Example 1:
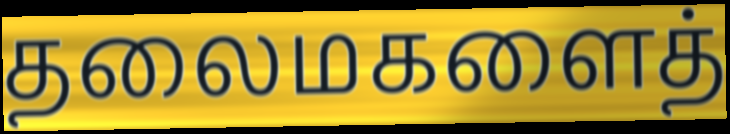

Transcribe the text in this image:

தலைமகளைத்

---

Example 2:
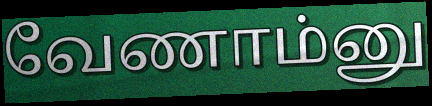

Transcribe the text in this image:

வேணாம்னு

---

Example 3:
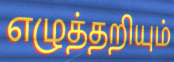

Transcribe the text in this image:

எழுத்தறியும்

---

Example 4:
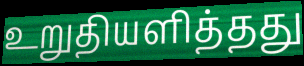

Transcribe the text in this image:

உறுதியளித்தது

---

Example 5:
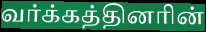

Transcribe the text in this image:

வர்க்கத்தினரின்